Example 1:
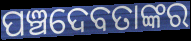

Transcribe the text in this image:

ପଞ୍ଚଦେବତାଙ୍କର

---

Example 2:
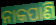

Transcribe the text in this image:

ନାକପାଣି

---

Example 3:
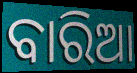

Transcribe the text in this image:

ବାରିଆ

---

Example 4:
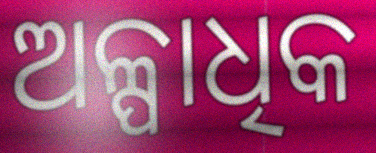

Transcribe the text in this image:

ଅଳ୍ପାଧିକ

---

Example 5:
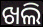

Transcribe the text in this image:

ଖଲି